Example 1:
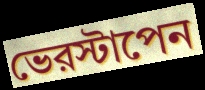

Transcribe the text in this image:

ভেরস্টাপেন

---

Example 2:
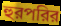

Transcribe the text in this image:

হুরপরির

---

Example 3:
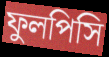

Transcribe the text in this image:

ফুলপিসি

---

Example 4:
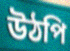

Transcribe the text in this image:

উঠপি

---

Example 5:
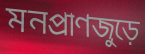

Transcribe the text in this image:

মনপ্রাণজুড়ে